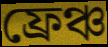
ফ্রেঞ্চ